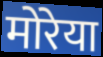
मोरेया